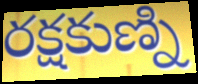
రక్షకుణ్ని